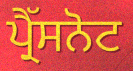
ਪ੍ਰੈੱਸਨੋਟ